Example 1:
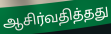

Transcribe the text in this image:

ஆசிர்வதித்தது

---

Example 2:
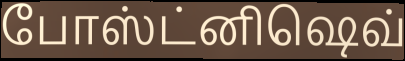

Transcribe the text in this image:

போஸ்ட்னிஷெவ்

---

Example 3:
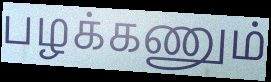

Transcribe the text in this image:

பழக்கணும்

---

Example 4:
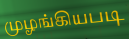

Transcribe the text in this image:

முழங்கியபடி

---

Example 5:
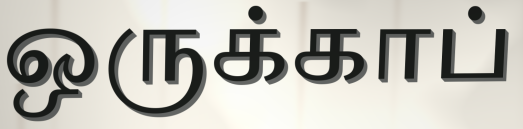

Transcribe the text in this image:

ஒருக்காப்